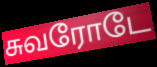
சுவரோடே